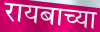
रायबाच्या